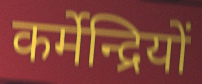
कर्मेन्द्रियों